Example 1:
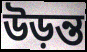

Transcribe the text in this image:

উড়ন্ত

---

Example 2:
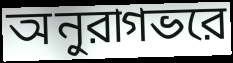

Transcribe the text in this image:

অনুরাগভরে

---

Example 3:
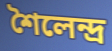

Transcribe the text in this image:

শৈলেন্দ্র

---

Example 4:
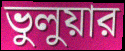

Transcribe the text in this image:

ভুলুয়ার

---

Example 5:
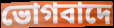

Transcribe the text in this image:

ভোগবাদে